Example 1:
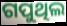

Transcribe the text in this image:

ଗପୁଥିଲ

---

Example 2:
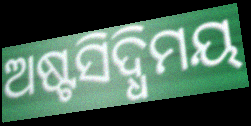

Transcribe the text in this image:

ଅଷ୍ଟସିଦ୍ଧିମୟ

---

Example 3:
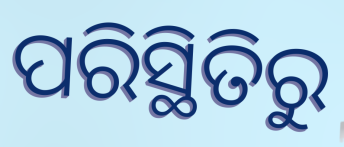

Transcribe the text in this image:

ପରିସ୍ଥିତିରୁ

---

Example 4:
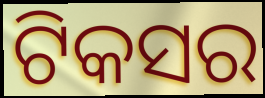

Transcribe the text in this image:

ଟିକସର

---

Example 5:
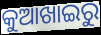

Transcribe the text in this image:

କୁଆଖାଇରୁ